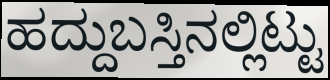
ಹದ್ದುಬಸ್ತಿನಲ್ಲಿಟ್ಟು